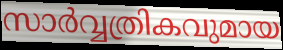
സാർവ്വത്രികവുമായ